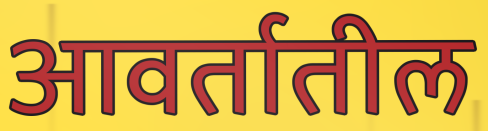
आवर्तातील